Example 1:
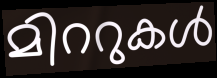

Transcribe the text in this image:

മിററുകൾ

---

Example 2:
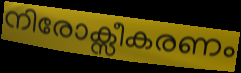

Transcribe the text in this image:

നിരോക്സീകരണം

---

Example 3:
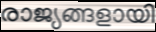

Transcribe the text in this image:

രാജ്യങ്ങളായി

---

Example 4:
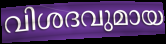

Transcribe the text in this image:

വിശദവുമായ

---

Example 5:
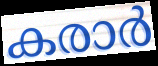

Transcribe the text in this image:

കരാർ